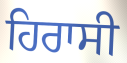
ਹਿਰਾਸੀ